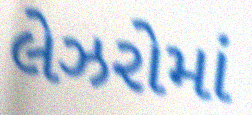
લેઝરોમાં